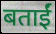
बताईं